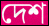
দেশ